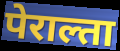
पेराल्ता